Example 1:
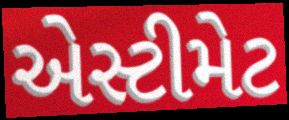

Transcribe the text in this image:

એસ્ટીમેટ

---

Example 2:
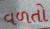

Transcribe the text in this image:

વળતો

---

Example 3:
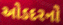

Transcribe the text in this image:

ઓડદરનો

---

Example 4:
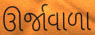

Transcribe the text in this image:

ઊર્જાવાળા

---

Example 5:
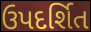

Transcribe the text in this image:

ઉપદર્શિત